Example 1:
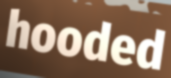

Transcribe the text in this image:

hooded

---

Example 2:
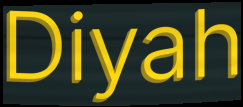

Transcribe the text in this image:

Diyah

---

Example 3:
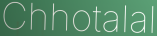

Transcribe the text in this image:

Chhotalal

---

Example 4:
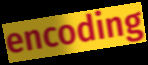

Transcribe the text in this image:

encoding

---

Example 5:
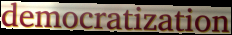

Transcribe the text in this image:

democratization